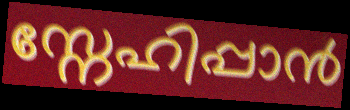
സ്നേഹിപ്പാൻ